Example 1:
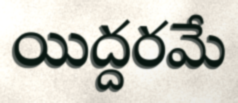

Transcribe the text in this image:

యిద్దరమే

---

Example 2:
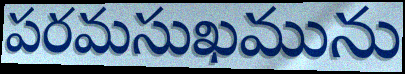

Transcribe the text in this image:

పరమసుఖమును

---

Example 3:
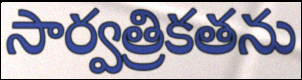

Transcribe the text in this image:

సార్వత్రికతను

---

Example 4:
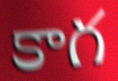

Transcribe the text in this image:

కాగ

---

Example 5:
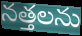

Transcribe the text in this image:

నత్తలను